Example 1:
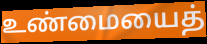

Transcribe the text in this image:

உண்மையைத்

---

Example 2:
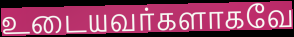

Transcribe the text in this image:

உடையவர்களாகவே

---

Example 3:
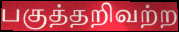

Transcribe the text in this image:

பகுத்தறிவற்ற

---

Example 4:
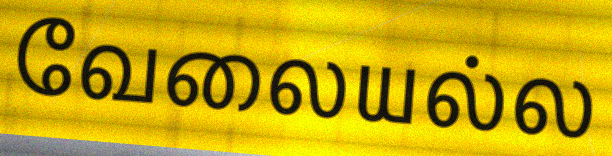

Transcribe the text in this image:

வேலையல்ல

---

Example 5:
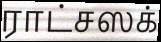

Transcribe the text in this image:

ராட்சஸக்